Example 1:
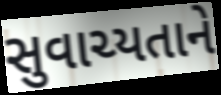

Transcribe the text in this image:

સુવાચ્યતાને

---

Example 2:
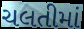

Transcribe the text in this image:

ચલતીમાં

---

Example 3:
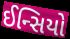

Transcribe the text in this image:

ઈન્સિયો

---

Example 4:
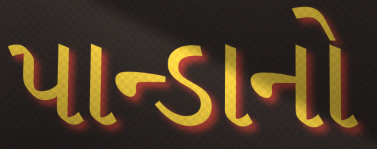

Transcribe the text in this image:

પાન્ડાનો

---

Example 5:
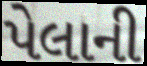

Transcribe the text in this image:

પેલાની